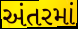
અંતરમાં